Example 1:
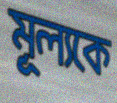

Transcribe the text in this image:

মূল্যকে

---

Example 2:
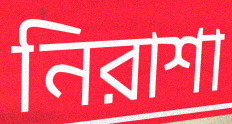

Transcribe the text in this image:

নিরাশা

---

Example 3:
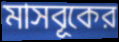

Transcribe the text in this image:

মাসবূকের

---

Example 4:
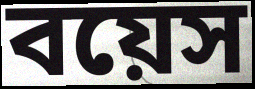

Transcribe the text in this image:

বয়েস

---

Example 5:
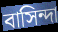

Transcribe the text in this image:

বাসিন্দা